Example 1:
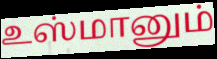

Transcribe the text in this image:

உஸ்மானும்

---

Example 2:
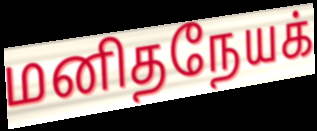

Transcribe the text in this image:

மனிதநேயக்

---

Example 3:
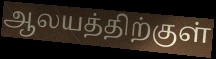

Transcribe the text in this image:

ஆலயத்திற்குள்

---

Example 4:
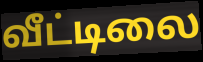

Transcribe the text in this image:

வீட்டிலை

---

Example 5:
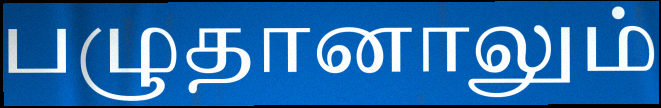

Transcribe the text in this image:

பழுதானாலும்